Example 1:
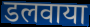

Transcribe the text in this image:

डलवाया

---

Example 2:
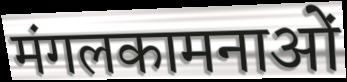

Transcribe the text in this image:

मंगलकामनाओं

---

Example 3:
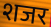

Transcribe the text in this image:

शजर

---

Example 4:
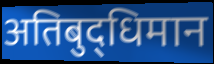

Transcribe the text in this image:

अतिबुद्धिमान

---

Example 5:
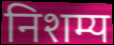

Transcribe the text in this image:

निशम्य